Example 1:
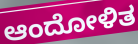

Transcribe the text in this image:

ಆಂದೋಳಿತ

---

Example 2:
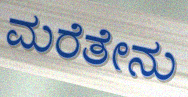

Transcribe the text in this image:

ಮರೆತೇನು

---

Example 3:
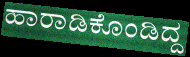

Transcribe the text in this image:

ಹಾರಾಡಿಕೊಂಡಿದ್ದ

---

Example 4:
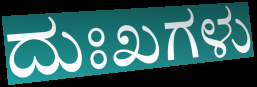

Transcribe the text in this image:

ದುಃಖಗಳು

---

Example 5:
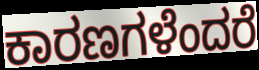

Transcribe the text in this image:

ಕಾರಣಗಳೆಂದರೆ